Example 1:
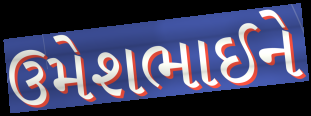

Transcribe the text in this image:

ઉમેશભાઈને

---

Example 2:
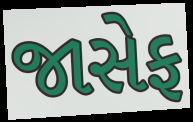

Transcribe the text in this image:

જાસેફ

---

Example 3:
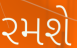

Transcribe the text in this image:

રમશે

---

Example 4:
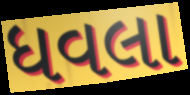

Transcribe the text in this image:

ધવલા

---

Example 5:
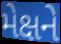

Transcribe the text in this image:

મેક્ષને